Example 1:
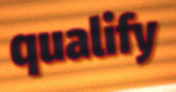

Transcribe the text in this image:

qualify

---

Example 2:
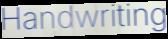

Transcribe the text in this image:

Handwriting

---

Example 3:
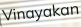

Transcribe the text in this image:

Vinayakan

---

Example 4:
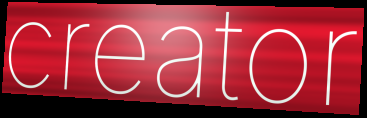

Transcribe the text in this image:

creator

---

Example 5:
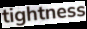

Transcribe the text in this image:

tightness